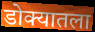
डोक्‍यातला